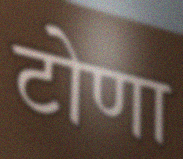
टोणा